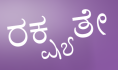
ರಕ್ಷ್ಯತೇ